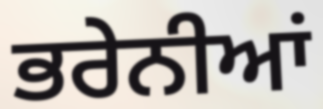
ਭਰੇਨੀਆਂ